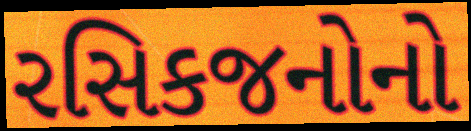
રસિકજનોનો